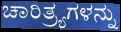
ಚಾರಿತ್ರ್ಯಗಳನ್ನು